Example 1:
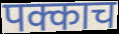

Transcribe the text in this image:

पक्काच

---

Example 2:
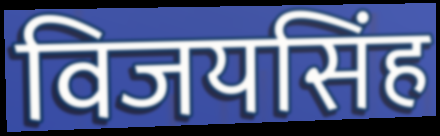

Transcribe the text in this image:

विजयसिंह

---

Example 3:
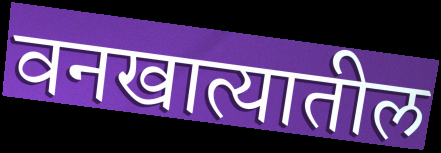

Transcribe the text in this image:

वनखात्यातील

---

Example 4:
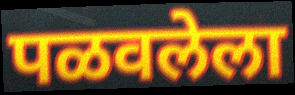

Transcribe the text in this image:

पळवलेला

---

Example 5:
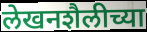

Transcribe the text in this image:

लेखनशैलीच्या